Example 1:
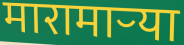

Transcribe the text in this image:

मारामाऱ्या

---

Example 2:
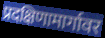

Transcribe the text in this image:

प्रदक्षिणामार्गावर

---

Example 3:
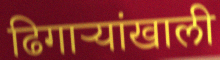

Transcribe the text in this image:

ढिगाऱ्यांखाली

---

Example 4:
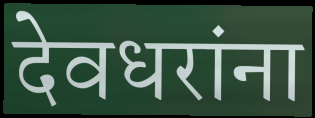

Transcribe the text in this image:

देवधरांना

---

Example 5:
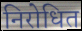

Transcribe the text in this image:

निरोधित